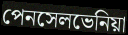
পেনসেলভেনিয়া